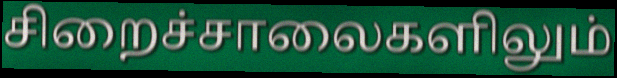
சிறைச்சாலைகளிலும்